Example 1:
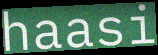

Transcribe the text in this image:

haasi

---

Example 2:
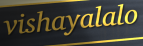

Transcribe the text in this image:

vishayalalo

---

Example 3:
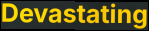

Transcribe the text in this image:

Devastating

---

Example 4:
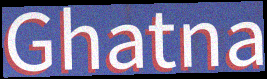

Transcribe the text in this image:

Ghatna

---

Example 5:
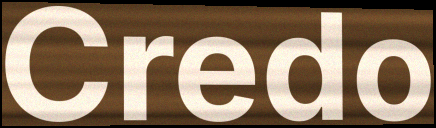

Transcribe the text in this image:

Credo